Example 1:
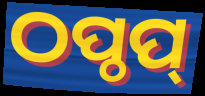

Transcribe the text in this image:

ଠପ୍ଠପ୍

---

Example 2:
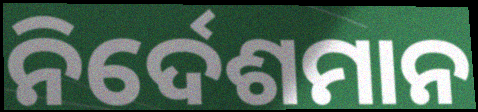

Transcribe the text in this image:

ନିର୍ଦେଶମାନ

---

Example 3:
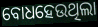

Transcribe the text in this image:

ବୋଧହେଉଥିଲା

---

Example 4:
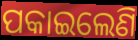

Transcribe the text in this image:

ପକାଇଲେଣି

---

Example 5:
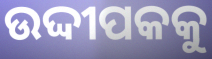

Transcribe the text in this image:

ଉଦ୍ଦୀପକକୁ